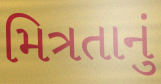
મિત્રતાનું